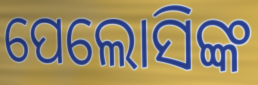
ପେଲୋସିଙ୍କ